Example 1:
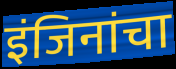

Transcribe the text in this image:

इंजिनांचा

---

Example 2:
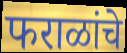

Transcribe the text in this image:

फराळांचे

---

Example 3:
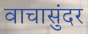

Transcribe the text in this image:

वाचासुंदर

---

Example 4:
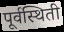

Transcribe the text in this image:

पूर्वस्थिती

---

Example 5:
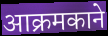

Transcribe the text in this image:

आक्रमकाने